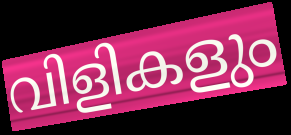
വിളികളും